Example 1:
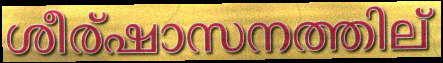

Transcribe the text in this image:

ശീര്ഷാസനത്തില്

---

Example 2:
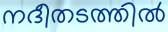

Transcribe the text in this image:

നദീതടത്തിൽ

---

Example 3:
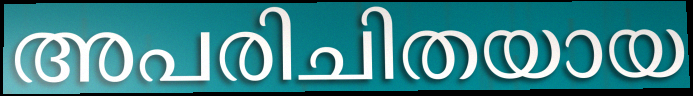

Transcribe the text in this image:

അപരിചിതയായ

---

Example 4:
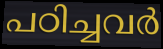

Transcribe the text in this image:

പഠിച്ചവർ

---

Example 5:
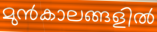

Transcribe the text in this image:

മുൻകാലങ്ങളിൽ